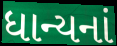
ધાન્યનાં